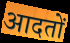
आदतों